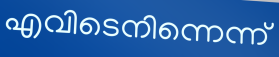
എവിടെനിന്നെന്ന്